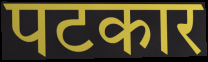
पटकार